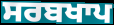
ਸਰਬਖਾਪ